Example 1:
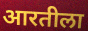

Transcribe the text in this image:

आरतीला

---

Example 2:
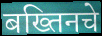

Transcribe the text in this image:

बख्तिनचे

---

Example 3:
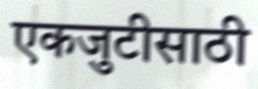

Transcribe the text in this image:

एकजुटीसाठी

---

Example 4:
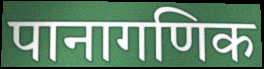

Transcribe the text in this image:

पानागणिक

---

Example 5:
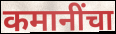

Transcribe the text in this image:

कमानींचा